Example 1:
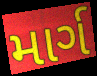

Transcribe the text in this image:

માર્ગ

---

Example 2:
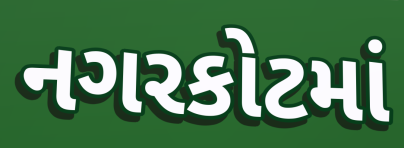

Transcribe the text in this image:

નગરકોટમાં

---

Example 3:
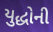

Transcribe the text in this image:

યુદ્ધોની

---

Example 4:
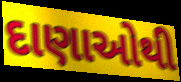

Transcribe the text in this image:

દાણાઓથી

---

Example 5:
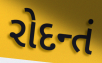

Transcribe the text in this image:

રોદન્તં